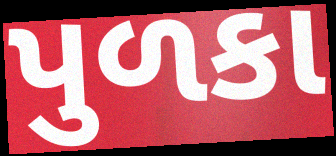
પુળકા